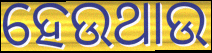
ହେଉଥାଉ